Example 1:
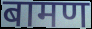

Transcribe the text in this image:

बामण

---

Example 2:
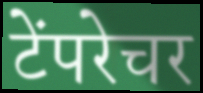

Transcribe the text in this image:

टेंपरेचर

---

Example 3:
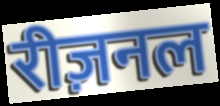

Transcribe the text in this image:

रीज़नल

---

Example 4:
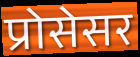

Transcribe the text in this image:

प्रोसेसर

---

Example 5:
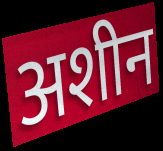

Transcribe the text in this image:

अशीन